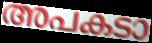
അപകടാ